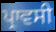
ਪ੍ਰਾਵਸੀ